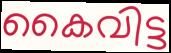
കൈവിട്ട